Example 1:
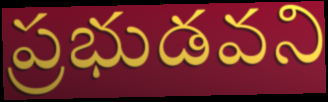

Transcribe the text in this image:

ప్రభుడవని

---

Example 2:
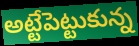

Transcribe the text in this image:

అట్టేపెట్టుకున్న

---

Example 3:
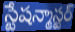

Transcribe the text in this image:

స్టేషన్మాస్టర్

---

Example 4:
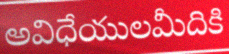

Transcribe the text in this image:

అవిధేయులమీదికి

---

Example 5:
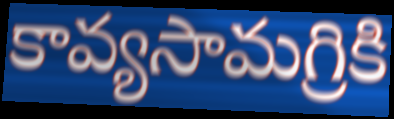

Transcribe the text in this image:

కావ్యసామగ్రికి